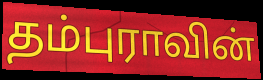
தம்புராவின்